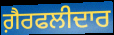
ਗ਼ੈਰਫਲੀਦਾਰ